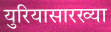
युरियासारख्या